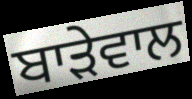
ਬਾੜੇਵਾਲ